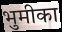
भुमीका